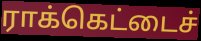
ராக்கெட்டைச்